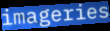
imageries